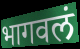
भागवलं